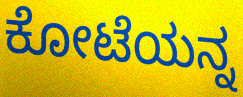
ಕೋಟೆಯನ್ನ